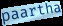
paartha